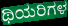
ಥಿಯರಿಗಳ